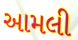
આમલી